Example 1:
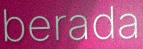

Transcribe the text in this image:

berada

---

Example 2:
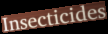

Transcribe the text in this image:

Insecticides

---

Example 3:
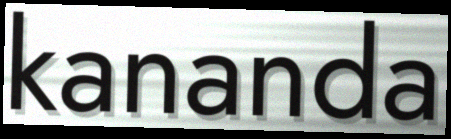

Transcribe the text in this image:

kananda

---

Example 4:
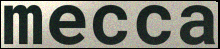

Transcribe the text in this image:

mecca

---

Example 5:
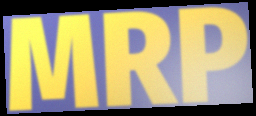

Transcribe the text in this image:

MRP